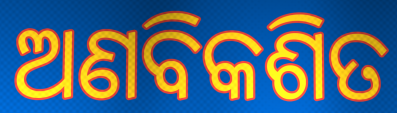
ଅଣବିକଶିତ